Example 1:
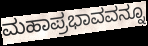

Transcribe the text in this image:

ಮಹಾಪ್ರಭಾವವನ್ನೂ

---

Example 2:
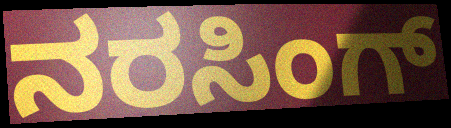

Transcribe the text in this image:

ನರಸಿಂಗ್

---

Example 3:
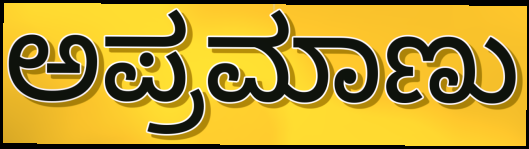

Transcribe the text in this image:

ಅಪ್ರಮಾಣು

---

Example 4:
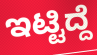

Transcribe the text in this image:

ಇಟ್ಟಿದ್ದೆ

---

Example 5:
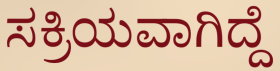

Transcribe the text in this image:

ಸಕ್ರಿಯವಾಗಿದ್ದೆ